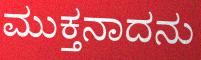
ಮುಕ್ತನಾದನು